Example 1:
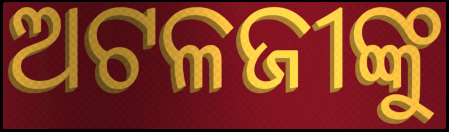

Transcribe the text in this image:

ଅଟଳଜୀଙ୍କୁ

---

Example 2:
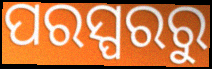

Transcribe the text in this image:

ପରସ୍ପରରୁ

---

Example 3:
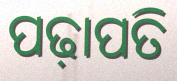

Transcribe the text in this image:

ପଢ଼ାପତି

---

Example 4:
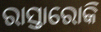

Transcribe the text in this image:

ରାସ୍ତାରୋକି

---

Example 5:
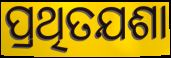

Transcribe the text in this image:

ପ୍ରଥିତଯଶା